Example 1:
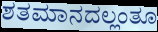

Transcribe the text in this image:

ಶತಮಾನದಲ್ಲಂತೂ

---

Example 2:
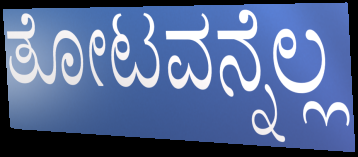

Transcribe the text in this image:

ತೋಟವನ್ನೆಲ್ಲ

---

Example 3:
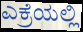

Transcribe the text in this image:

ಎಕ್ರೆಯಲ್ಲಿ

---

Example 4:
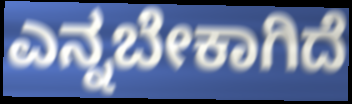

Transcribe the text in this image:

ಎನ್ನಬೇಕಾಗಿದೆ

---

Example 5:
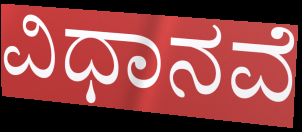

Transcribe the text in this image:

ವಿಧಾನವೆ